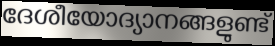
ദേശീയോദ്യാനങ്ങളുണ്ട്